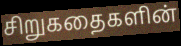
சிறுகதைகளின்